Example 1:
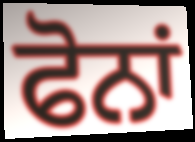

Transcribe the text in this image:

ਫੋਨਾਂ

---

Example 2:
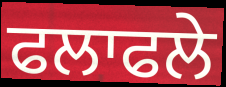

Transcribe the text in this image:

ਫਲਾਫਲੇ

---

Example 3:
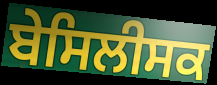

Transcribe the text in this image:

ਬੇਸਿਲੀਸਕ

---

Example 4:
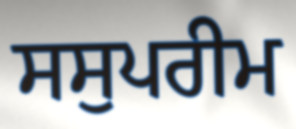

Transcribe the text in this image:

ਸਸੁਪਰੀਮ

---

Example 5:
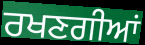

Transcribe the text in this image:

ਰਖਣਗੀਆਂ